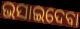
ଭସାଇଦେବା